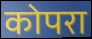
कोपरा